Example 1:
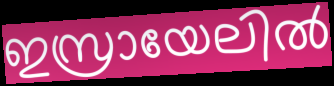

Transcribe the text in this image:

ഇസ്രായേലിൽ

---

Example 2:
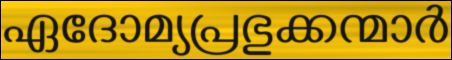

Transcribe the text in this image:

ഏദോമ്യപ്രഭുക്കന്മാർ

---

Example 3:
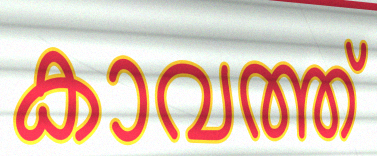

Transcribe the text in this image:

കാവത്ത്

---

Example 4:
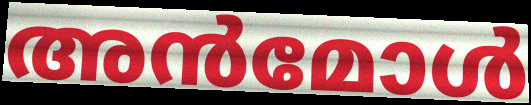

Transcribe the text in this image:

അൻമോൾ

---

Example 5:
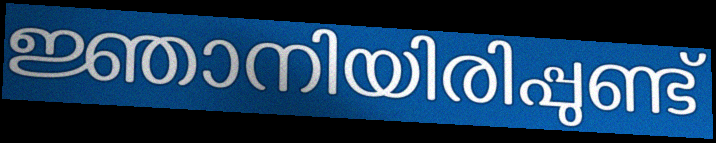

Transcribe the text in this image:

ജ്ഞാനിയിരിപ്പുണ്ട്